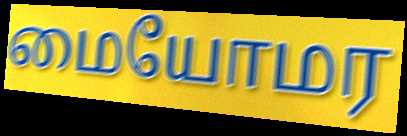
மையோமர